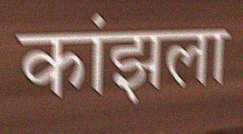
कांझला